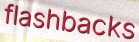
flashbacks